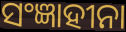
ସଂଜ୍ଞାହୀନା